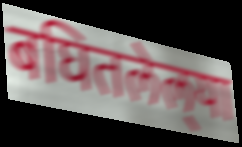
बघितलेल्या